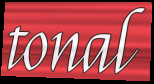
tonal